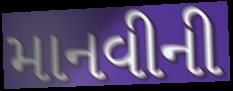
માનવીની